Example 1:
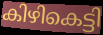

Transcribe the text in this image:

കിഴികെട്ടി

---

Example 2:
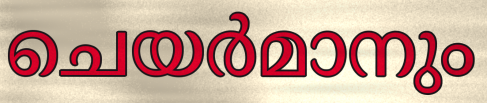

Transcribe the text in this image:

ചെയർമാനും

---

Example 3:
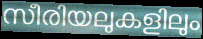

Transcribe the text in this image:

സീരിയലുകളിലും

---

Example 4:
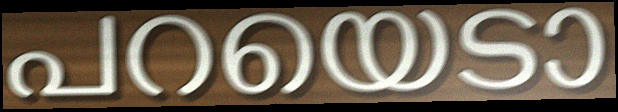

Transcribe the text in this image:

പറയെടാ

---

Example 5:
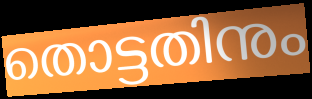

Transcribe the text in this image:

തൊട്ടതിനും